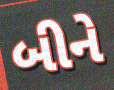
બીને